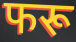
फरू